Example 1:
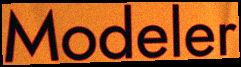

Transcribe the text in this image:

Modeler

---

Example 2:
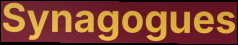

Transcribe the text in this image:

Synagogues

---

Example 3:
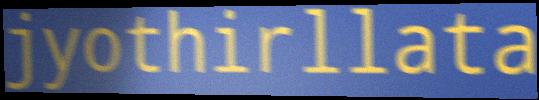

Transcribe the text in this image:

jyothirllata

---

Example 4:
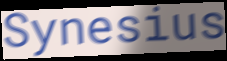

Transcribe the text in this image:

Synesius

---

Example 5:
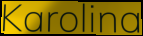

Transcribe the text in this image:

Karolina